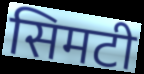
सिमटी